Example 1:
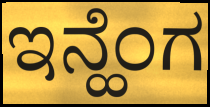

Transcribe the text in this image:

ಇನ್ಹೆಂಗ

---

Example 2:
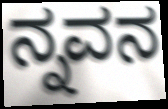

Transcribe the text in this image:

ನ್ನವನ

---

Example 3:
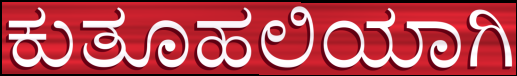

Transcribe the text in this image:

ಕುತೂಹಲಿಯಾಗಿ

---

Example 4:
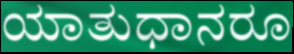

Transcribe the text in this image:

ಯಾತುಧಾನರೂ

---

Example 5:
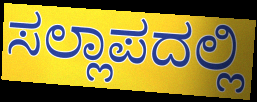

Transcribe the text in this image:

ಸಲ್ಲಾಪದಲ್ಲಿ